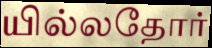
யில்லதோர்